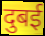
दुबई